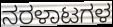
ನರಳಾಟಗಳ